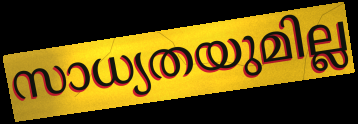
സാധ്യതയുമില്ല